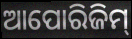
ଆପୋରିଜିମ୍